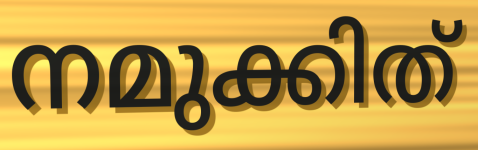
നമുക്കിത്